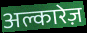
अल्कारेज़